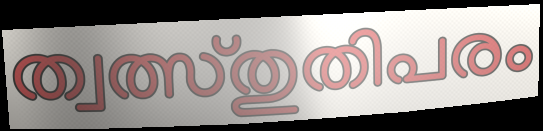
ത്വത്സ്തുതിപരം